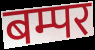
बम्पर